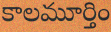
కాలమూర్తిం